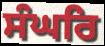
ਸੰਘਰਿ